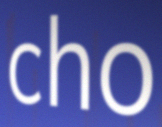
cho